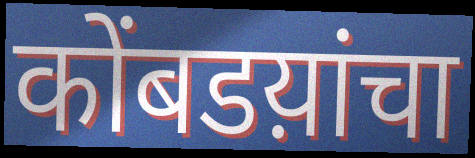
कोंबडय़ांचा